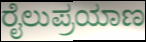
ರೈಲುಪ್ರಯಾಣ